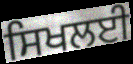
ਸਿਖਲਈ